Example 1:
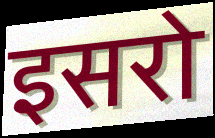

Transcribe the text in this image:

इसरो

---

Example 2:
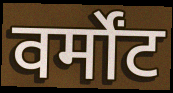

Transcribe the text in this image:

वर्मोंट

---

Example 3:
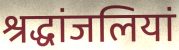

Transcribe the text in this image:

श्रद्धांजलियां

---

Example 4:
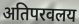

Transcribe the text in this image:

अतिपरवलय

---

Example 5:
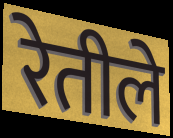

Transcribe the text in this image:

रेतीले